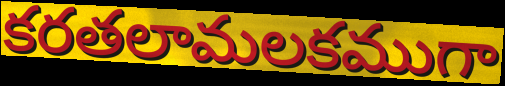
కరతలామలకముగా